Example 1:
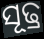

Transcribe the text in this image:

ସୂଢ୍ର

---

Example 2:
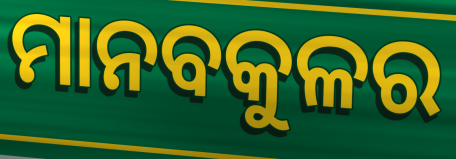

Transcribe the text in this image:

ମାନବକୁଳର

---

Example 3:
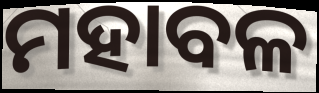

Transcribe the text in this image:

ମହାବଳ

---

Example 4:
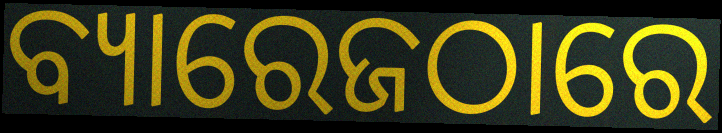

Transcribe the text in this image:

ବ୍ୟାରେଜଠାରେ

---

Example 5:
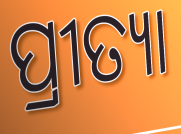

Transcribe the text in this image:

ପ୍ରୀତ୍ୟା